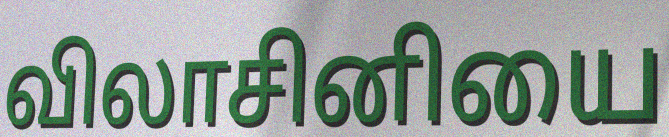
விலாசினியை